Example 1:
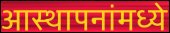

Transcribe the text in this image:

आस्थापनांमध्ये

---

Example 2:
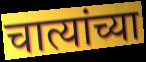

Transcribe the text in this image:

चात्यांच्या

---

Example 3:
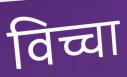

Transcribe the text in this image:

विच्चा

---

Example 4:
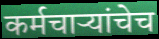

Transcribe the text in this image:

कर्मचाऱ्यांचेच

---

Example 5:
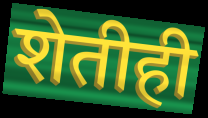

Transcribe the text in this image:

शेतीही